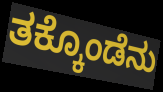
ತಕ್ಕೊಂಡೆನು